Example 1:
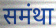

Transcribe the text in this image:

समंथा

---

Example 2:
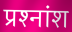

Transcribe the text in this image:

प्रश्‍नांश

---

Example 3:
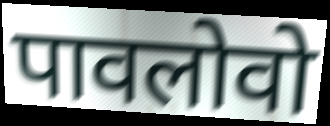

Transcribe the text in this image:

पावलोवो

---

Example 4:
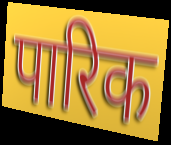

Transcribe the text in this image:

पारिक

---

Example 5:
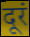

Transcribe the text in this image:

दूरं